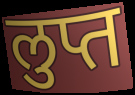
लुप्त